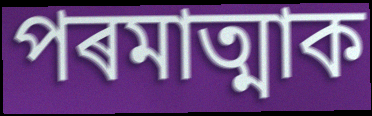
পৰমাত্মাক